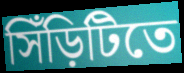
সিঁড়িটিতে